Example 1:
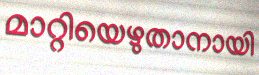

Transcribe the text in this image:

മാറ്റിയെഴുതാനായി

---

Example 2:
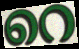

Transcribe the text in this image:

റെ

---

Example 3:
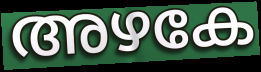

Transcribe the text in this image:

അഴകേ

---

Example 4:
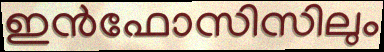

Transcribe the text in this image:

ഇൻഫോസിസിലും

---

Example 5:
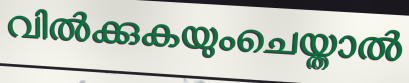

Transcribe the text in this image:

വിൽക്കുകയുംചെയ്താൽ